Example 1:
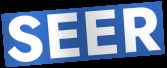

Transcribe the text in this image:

SEER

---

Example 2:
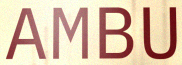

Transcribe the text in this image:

AMBU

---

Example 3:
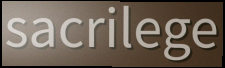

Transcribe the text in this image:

sacrilege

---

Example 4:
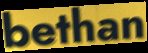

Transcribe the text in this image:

bethan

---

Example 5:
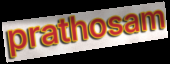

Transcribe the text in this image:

prathosam